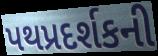
પથપ્રદર્શકની